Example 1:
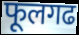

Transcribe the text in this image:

फूलगढ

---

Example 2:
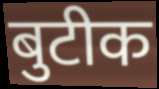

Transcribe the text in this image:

बुटीक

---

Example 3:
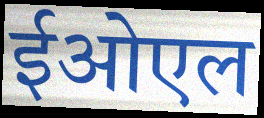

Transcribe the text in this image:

ईओएल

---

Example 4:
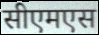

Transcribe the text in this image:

सीएमएस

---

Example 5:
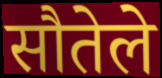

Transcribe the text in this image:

सौतेले